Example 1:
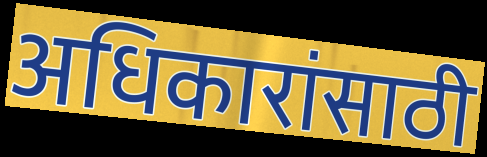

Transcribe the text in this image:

अधिकारांसाठी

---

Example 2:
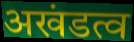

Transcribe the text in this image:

अखंडत्व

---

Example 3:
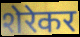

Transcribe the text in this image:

शेरेकर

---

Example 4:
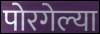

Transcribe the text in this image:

पोरगेल्या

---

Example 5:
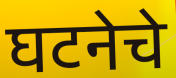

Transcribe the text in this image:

घटनेचे